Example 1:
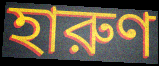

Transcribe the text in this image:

হারুণ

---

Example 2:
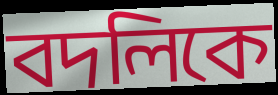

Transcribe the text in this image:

বদলিকে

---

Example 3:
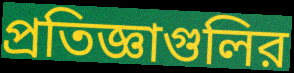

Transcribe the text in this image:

প্রতিজ্ঞাগুলির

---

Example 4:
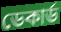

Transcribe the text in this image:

ডেকার্ড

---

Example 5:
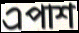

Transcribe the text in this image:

এপাশ